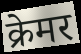
क्रेमर